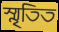
স্মৃতিত